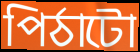
পিঠাটো